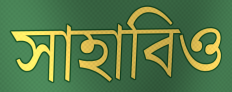
সাহাবিও